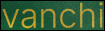
vanchi